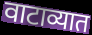
वाटाव्यात